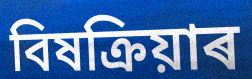
বিষক্ৰিয়াৰ